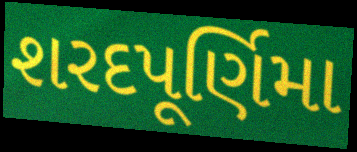
શરદપૂર્ણિમા